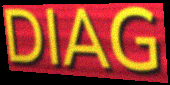
DIAG